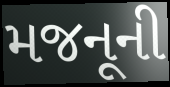
મજનૂની